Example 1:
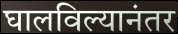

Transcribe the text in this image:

घालविल्यानंतर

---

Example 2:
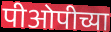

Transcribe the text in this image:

पीओपीच्या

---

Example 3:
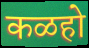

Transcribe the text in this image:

कळहो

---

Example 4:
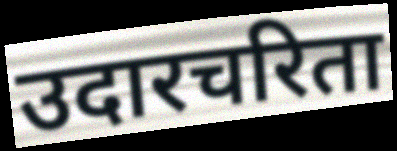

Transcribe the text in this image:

उदारचरिता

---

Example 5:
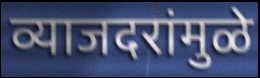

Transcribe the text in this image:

व्याजदरांमुळे